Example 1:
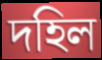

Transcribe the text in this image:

দহিল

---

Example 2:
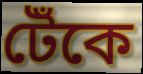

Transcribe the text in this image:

টেঁকে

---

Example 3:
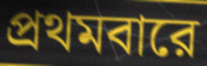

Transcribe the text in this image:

প্রথমবারে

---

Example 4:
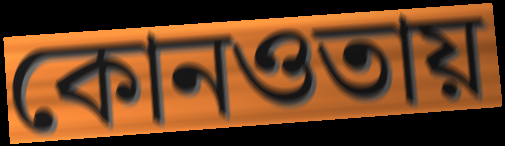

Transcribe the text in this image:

কোনওতায়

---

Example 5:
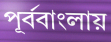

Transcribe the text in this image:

পূর্ববাংলায়